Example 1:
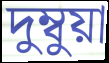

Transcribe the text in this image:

দুম্বুয়া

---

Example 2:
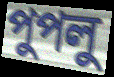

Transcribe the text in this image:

পুপলু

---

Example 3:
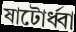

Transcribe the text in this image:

ষাটোর্ধ্বা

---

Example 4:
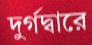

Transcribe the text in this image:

দুর্গদ্বারে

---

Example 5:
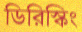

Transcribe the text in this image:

ডিরিস্কিং